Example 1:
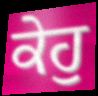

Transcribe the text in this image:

ਕੇਹੁ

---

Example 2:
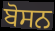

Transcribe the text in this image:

ਬੋਸਨ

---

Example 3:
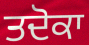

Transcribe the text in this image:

ਤਦੋਕਾ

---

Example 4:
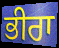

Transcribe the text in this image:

ਭੀਰਾ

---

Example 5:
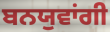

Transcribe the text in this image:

ਬਨਯੁਵਾਂਗੀ